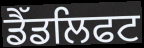
ਡੈੱਡਲਿਫਟ